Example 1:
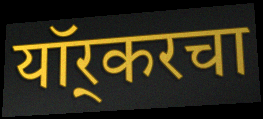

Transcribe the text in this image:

यॉर्करचा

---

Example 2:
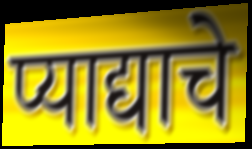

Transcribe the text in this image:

प्याद्याचे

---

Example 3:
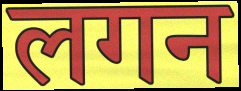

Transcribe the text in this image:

लगन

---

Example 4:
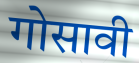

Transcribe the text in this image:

गोसावी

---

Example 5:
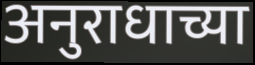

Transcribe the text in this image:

अनुराधाच्या